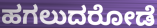
ಹಗಲುದರೋಡೆ